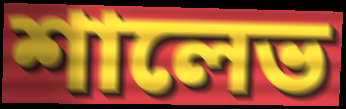
শালেভ